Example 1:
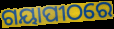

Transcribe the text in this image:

ଗୟାପୀଠରେ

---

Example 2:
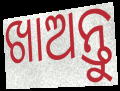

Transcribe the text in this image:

ଖାଅନ୍ତୁ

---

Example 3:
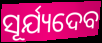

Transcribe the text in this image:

ସୂର୍ଯ୍ୟଦେବ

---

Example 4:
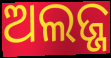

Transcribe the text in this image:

ଅଲଜ୍ଜ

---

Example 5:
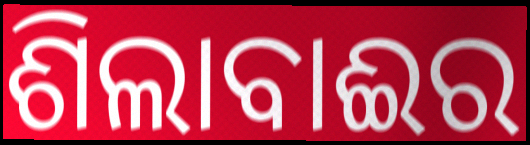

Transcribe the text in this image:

ଶିଲାବାଈର